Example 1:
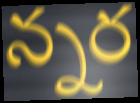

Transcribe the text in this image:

న్నర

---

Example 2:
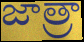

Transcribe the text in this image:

జాత్రా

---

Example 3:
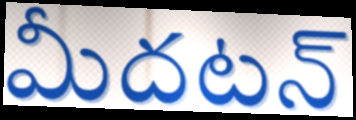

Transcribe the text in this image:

మీదటన్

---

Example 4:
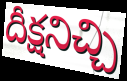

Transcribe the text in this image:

దీక్షనిచ్చి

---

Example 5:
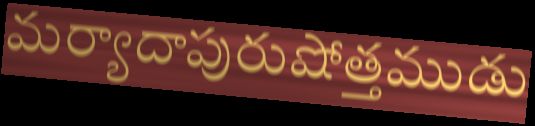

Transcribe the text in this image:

మర్యాదాపురుషోత్తముడు